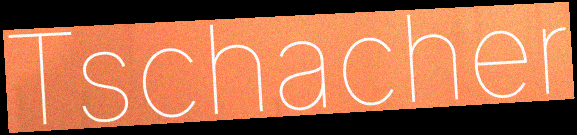
Tschacher